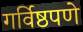
गर्विष्ठपणे